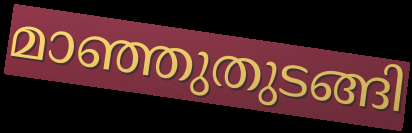
മാഞ്ഞുതുടങ്ങി